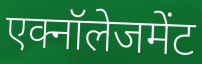
एक्नॉलेजमेंट